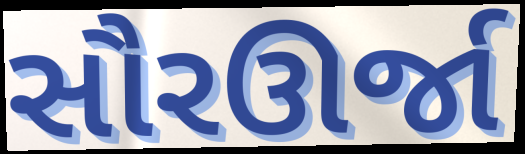
સૌરઊર્જા